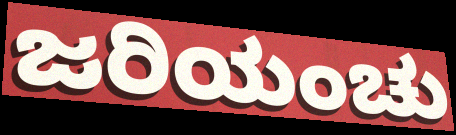
ಜರಿಯಂಚು